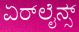
ಏರ್‌ಲೈನ್ಸ್